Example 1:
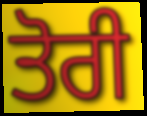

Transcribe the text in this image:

ਤੋਰੀ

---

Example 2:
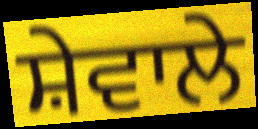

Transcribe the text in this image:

ਸ਼ੇਵਾਲੇ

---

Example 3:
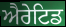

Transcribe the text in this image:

ਐਰੇਟਿਡ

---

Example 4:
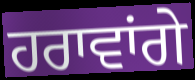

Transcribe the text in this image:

ਹਰਾਵਾਂਗੇ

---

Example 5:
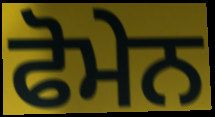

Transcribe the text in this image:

ਫੋਮੇਨ